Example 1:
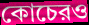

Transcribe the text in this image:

কোচেরও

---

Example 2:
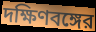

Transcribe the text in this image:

দক্ষিণবঙ্গের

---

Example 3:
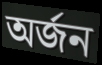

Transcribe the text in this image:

অর্জন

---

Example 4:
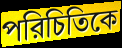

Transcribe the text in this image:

পরিচিতিকে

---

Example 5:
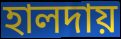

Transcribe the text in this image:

হালদায়